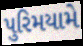
પુરિમયામે